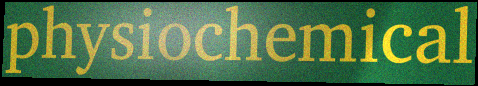
physiochemical